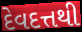
દેવદત્તથી